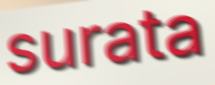
surata